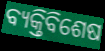
ବ୍ୟକ୍ତିବିଶେଷ